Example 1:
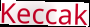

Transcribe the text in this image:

Keccak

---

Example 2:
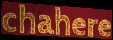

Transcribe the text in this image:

chahere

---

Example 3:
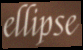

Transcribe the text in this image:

ellipse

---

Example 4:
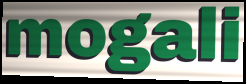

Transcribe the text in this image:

mogali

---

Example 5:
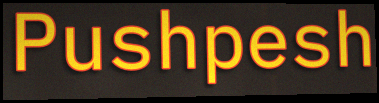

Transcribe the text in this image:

Pushpesh